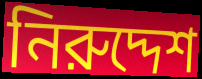
নিৰুদ্দেশ